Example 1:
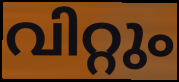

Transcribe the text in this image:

വിറ്റും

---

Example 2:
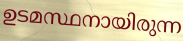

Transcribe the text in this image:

ഉടമസ്ഥനായിരുന്ന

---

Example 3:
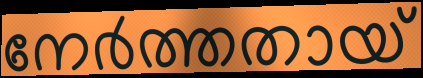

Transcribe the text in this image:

നേർത്തതായ്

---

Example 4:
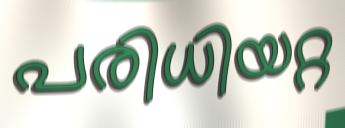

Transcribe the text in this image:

പരിധിയറ്റ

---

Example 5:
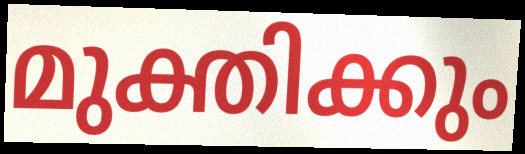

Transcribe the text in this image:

മുക്തിക്കും